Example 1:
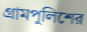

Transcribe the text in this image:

গ্রামপুলিশের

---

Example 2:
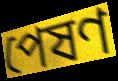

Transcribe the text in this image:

পেষণ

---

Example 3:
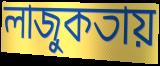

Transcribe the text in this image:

লাজুকতায়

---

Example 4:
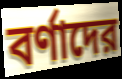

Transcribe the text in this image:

বর্ণাদের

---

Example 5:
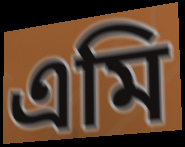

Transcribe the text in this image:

এমি